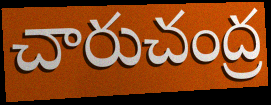
చారుచంద్ర